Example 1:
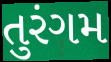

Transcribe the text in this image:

તુરંગમ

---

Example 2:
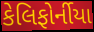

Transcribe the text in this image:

કેલિફોર્નીયા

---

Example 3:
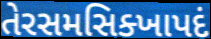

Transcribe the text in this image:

તેરસમસિક્ખાપદં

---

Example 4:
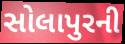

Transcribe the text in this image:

સોલાપુરની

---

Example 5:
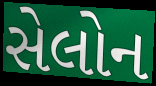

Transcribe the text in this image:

સેલોન